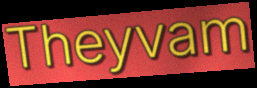
Theyvam